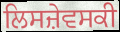
ਲਿਸਜ਼ੇਵਸਕੀ